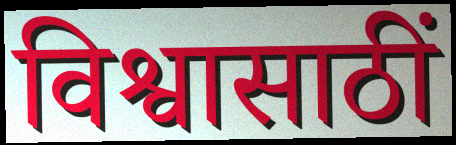
विश्वासाठीं